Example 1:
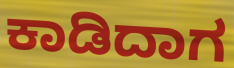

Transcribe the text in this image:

ಕಾಡಿದಾಗ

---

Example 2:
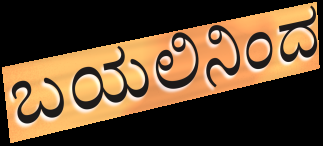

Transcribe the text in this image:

ಬಯಲಿನಿಂದ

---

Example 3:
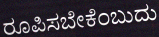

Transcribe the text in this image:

ರೂಪಿಸಬೇಕೆಂಬುದು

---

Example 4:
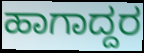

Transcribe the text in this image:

ಹಾಗಾದ್ದರ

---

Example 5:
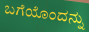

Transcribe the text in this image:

ಬಗೆಯೊಂದನ್ನು